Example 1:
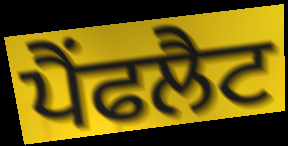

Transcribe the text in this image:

ਪੈਂਫਲੈਟ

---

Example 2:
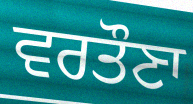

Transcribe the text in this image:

ਵਰਤੌਣਾ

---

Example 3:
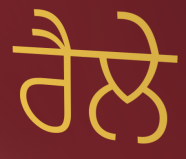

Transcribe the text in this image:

ਰੈਲੇ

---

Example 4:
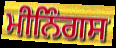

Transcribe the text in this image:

ਮੀਨਿੰਗਸ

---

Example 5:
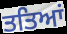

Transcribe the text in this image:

ਤਤਿਆਂ